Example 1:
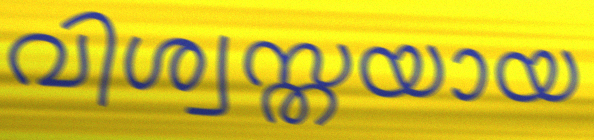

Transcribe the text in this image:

വിശ്വസ്തയായ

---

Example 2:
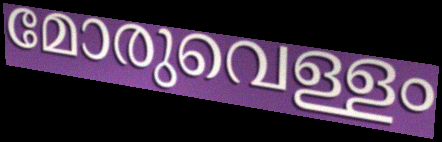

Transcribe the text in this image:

മോരുവെള്ളം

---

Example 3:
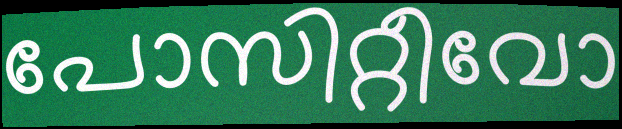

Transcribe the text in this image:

പോസിറ്റീവോ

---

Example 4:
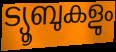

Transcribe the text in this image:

ട്യൂബുകളും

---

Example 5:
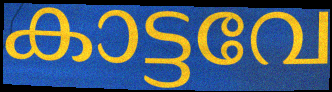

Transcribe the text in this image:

കാട്ടവേ